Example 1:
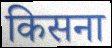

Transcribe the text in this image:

किसना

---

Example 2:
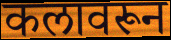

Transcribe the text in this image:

कलावरून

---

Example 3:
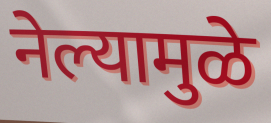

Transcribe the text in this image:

नेल्यामुळे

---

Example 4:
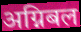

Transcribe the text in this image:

अग्निबल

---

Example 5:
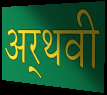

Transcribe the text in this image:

अर्थवी